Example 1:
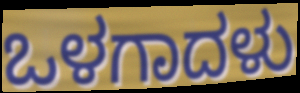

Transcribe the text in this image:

ಒಳಗಾದಳು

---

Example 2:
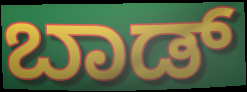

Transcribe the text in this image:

ಬಾಡ್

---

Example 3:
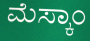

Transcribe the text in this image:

ಮೆಸ್ಕಾಂ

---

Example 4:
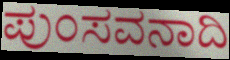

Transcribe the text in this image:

ಪುಂಸವನಾದಿ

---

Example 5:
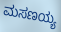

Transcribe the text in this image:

ಮಸಣಯ್ಯ